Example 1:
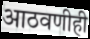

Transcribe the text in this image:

आठवणीही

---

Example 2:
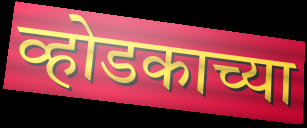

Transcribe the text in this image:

व्होडकाच्या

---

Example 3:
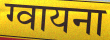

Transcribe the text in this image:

ग्वायना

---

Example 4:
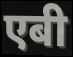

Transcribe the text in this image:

एबी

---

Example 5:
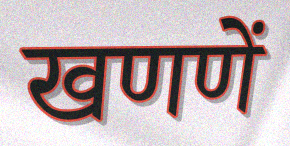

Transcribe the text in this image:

खणणें